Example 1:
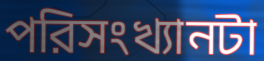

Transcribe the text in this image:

পরিসংখ্যানটা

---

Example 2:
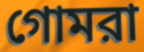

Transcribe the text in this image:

গোমরা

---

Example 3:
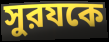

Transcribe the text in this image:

সুরযকে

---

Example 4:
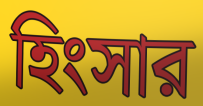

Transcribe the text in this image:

হিংসার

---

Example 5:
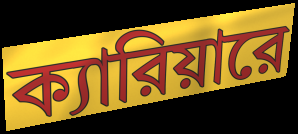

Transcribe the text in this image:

ক্যারিয়ারে